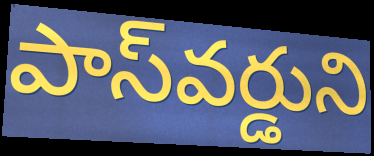
పాస్‌వర్డుని